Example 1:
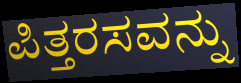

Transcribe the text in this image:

ಪಿತ್ತರಸವನ್ನು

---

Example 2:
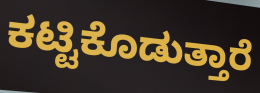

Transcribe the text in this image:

ಕಟ್ಟಿಕೊಡುತ್ತಾರೆ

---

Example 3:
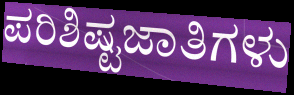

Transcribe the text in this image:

ಪರಿಶಿಷ್ಟಜಾತಿಗಳು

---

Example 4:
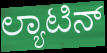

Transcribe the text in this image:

ಲ್ಯಾಟಿನ್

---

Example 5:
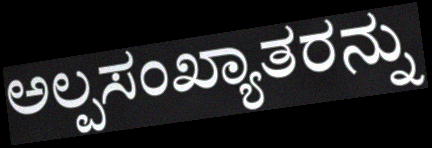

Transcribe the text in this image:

ಅಲ್ಪಸಂಖ್ಯಾತರನ್ನು